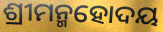
ଶ୍ରୀମନ୍ମହୋଦୟ